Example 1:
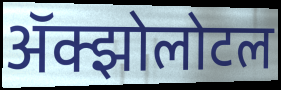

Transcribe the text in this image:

ॲक्झोलोटल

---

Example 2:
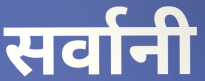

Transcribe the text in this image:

सर्वानी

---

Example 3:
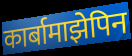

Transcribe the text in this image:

कार्बामाझेपिन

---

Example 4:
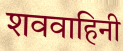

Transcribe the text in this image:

शववाहिनी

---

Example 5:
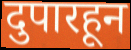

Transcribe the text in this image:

दुपारहून